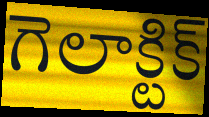
గెలాక్టిక్